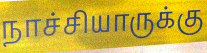
நாச்சியாருக்கு